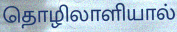
தொழிலாளியால்